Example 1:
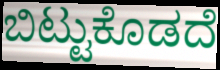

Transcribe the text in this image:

ಬಿಟ್ಟುಕೊಡದೆ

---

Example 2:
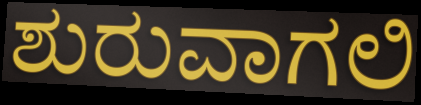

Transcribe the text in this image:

ಶುರುವಾಗಲಿ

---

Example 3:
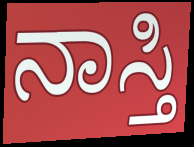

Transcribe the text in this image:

ನಾಸ್ತಿ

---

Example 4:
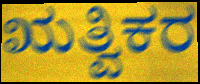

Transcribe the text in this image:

ಋತ್ವಿಕರ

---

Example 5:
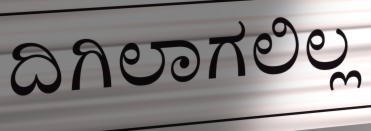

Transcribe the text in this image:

ದಿಗಿಲಾಗಲಿಲ್ಲ